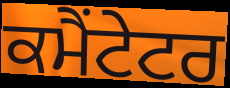
ਕਮੈਂਟੇਟਰ